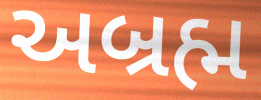
અબ્રહ્મ